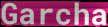
Garcha